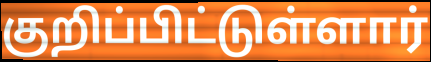
குறிப்பிட்டுள்ளார்